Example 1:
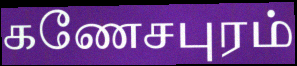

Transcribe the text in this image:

கணேசபுரம்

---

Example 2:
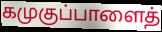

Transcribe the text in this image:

கமுகுப்பாளைத்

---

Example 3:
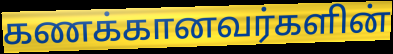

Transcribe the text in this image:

கணக்கானவர்களின்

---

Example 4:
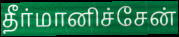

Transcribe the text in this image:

தீர்மானிச்சேன்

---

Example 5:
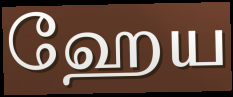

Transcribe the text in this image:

ஹேய